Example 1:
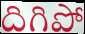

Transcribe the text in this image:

దిగిపో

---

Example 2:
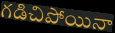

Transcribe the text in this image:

గడిచిపోయినా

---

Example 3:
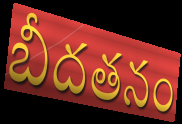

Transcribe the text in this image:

బీదతనం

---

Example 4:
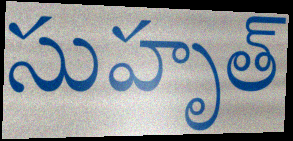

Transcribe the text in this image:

సుహృత్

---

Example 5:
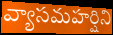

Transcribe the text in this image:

వ్యాసమహర్షిని